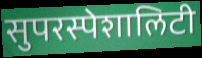
सुपरस्पेशालिटी